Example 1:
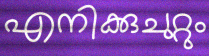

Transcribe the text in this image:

എനിക്കുചുറ്റും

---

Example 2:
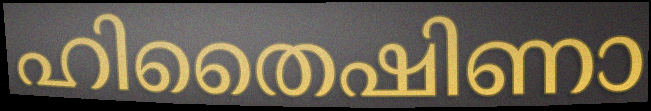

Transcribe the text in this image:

ഹിതൈഷിണാ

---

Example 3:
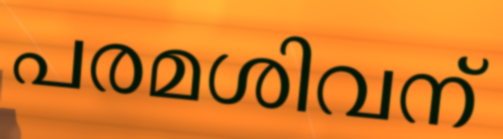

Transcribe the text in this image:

പരമശിവന്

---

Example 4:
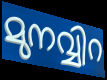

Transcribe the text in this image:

മുനവ്വിറ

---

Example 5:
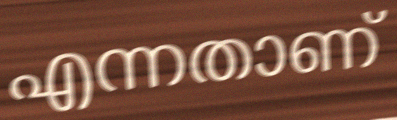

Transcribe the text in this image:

എന്നതാണ്